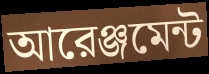
আরেঞ্জমেন্ট